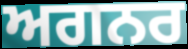
ਅਗਨਰ